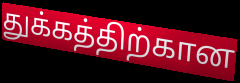
துக்கத்திற்கான